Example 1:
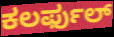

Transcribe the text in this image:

ಕಲರ್ಫುಲ್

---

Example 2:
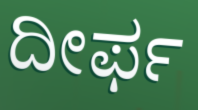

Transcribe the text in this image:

ದೀರ್ಫ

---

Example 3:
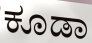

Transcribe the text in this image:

ಕೂಡಾ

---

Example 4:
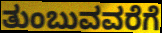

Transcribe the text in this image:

ತುಂಬುವವರೆಗೆ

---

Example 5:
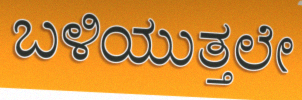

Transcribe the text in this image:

ಬಳಿಯುತ್ತಲೇ